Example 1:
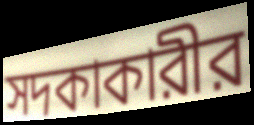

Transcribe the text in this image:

সদকাকারীর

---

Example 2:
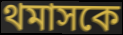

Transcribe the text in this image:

থমাসকে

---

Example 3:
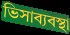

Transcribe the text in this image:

ভিসাব্যবস্থা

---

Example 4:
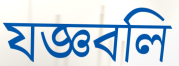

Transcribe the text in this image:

যজ্ঞবলি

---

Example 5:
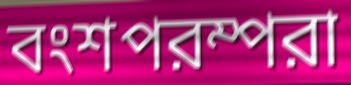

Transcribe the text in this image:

বংশপরম্পরা